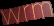
wrm